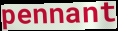
pennant